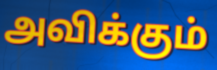
அவிக்கும்